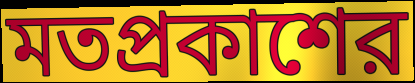
মতপ্রকাশের